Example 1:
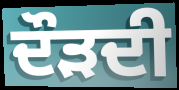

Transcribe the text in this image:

ਦੌੜਦੀ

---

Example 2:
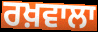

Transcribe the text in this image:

ਰਖ਼ਵਾਲਾ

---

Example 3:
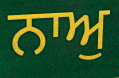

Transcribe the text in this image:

ਨਾਅੁ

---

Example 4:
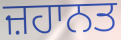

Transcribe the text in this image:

ਜ਼ਹਾਨਤ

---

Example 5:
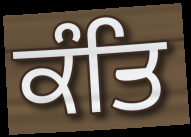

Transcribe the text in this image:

ਕੰਤਿ